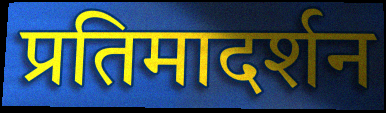
प्रतिमादर्शन